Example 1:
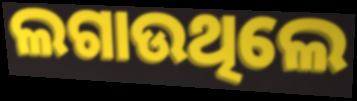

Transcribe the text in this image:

ଲଗାଉଥିଲେ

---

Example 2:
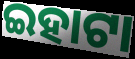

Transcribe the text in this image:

ଇହାଟା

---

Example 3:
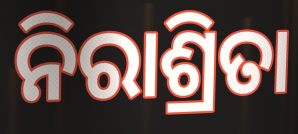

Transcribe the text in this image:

ନିରାଶ୍ରିତା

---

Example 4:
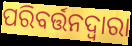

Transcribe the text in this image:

ପରିବର୍ତ୍ତନଦ୍ୱାରା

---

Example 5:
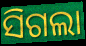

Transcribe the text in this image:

ସିଗଲା